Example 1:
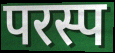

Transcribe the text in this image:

परस्प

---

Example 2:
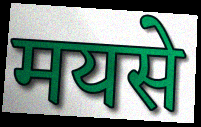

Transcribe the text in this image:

मयसे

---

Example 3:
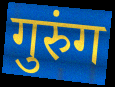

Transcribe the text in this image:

गुरुंग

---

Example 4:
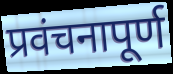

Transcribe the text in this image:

प्रवंचनापूर्ण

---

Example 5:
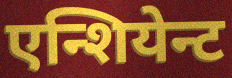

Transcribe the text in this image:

एन्शियेन्ट